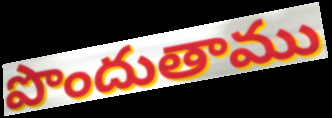
పొందుతాము